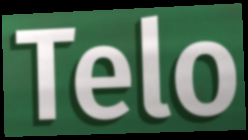
Telo